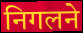
निगलने